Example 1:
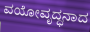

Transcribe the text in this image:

ವಯೋವೃದ್ಧನಾದ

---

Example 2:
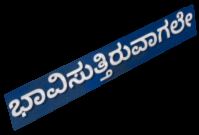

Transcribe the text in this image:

ಭಾವಿಸುತ್ತಿರುವಾಗಲೇ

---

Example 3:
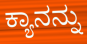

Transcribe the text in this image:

ಕ್ಯಾನನ್ನು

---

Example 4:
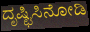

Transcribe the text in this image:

ದೃಷ್ಟಿಸಿನೋಡಿ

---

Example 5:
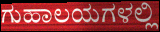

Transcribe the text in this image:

ಗುಹಾಲಯಗಳಲ್ಲಿ